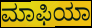
ಮಾಫಿಯಾ